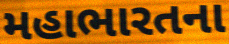
મહાભારતના